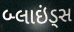
બ્લાઇંડ્સ